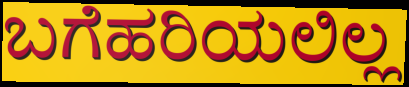
ಬಗೆಹರಿಯಲಿಲ್ಲ